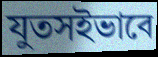
যুতসইভাবে